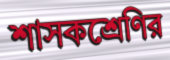
শাসকশ্রেণির